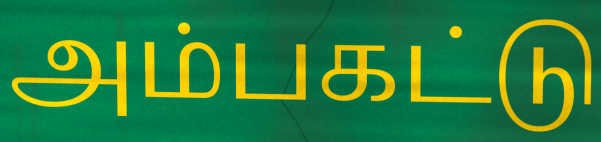
அம்பகட்டு